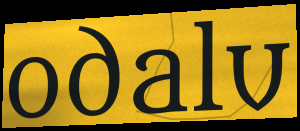
odalu